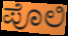
ಪೊಲಿ